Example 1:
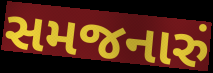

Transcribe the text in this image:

સમજનારું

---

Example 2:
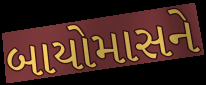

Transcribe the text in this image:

બાયોમાસને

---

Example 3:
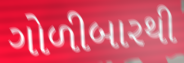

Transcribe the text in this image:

ગોળીબારથી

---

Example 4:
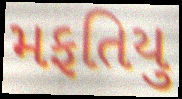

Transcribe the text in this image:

મફતિયુ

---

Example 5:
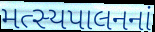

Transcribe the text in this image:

મત્સ્યપાલનનાં